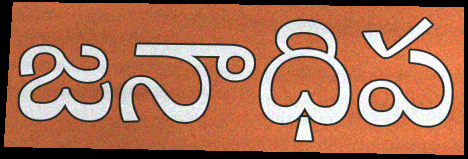
జనాధిప